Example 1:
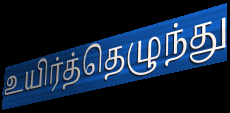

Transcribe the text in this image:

உயிர்த்தெழுந்து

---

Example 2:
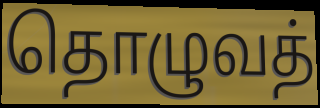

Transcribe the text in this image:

தொழுவத்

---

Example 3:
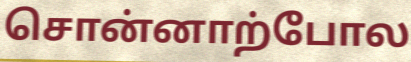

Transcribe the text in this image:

சொன்னாற்போல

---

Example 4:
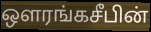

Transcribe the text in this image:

ஔரங்கசீபின்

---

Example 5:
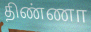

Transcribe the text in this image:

திண்ணா